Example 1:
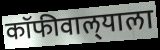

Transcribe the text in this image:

कॉफीवाल्याला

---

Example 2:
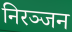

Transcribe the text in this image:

निरञ्जन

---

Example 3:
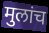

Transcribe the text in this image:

मुलांच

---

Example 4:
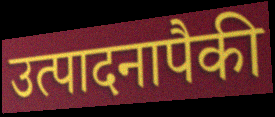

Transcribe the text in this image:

उत्पादनापैकी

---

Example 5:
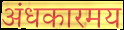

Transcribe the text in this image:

अंधकारमय